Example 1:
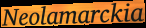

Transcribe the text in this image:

Neolamarckia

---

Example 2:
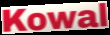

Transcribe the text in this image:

Kowal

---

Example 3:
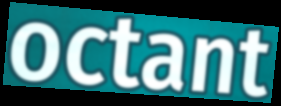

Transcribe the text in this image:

octant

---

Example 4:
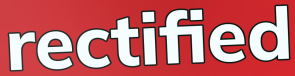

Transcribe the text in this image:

rectified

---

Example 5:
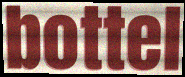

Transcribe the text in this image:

bottel